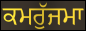
ਕਮਰੁੱਜਮਾ